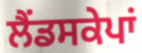
ਲੈਂਡਸਕੇਪਾਂ